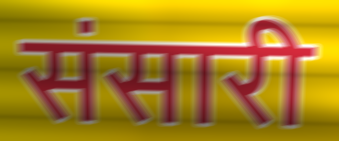
संसारी